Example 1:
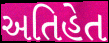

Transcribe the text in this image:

અતિહેત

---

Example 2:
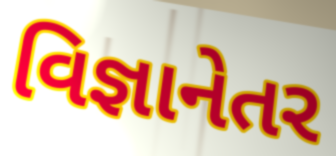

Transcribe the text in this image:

વિજ્ઞાનેતર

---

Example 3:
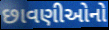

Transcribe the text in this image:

છાવણીઓનો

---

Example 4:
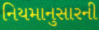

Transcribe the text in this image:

નિયમાનુસારની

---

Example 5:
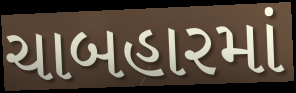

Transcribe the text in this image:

ચાબહારમાં